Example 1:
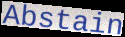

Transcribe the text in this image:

Abstain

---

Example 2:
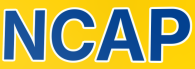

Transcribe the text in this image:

NCAP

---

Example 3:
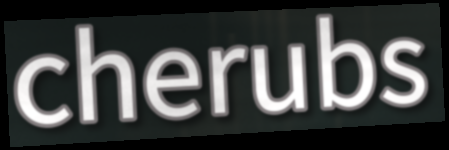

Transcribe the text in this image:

cherubs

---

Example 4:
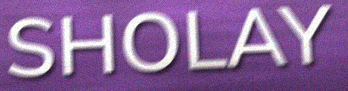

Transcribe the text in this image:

SHOLAY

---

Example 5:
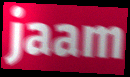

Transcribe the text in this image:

jaam